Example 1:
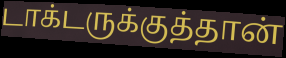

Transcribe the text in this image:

டாக்டருக்குத்தான்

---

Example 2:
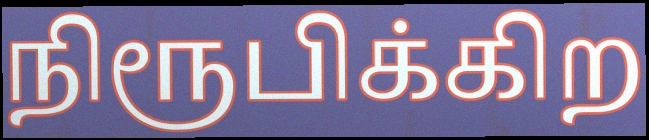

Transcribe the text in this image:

நிரூபிக்கிற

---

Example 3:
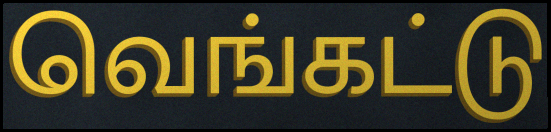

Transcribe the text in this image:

வெங்கட்டு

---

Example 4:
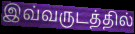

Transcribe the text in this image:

இவ்வருடத்தில்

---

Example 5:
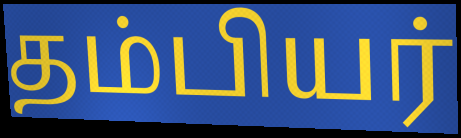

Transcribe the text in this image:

தம்பியர்